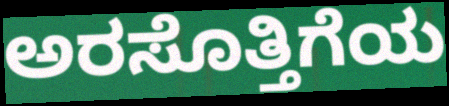
ಅರಸೊತ್ತಿಗೆಯ